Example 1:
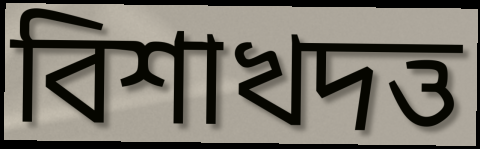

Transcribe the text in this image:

বিশাখদত্ত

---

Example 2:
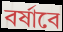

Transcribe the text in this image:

বর্ষাবে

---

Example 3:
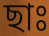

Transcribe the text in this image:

ছাঃ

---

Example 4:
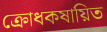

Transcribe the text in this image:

ক্রোধকষায়িত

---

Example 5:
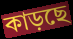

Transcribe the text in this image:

কাড়ছে